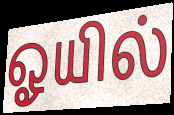
ஓயில்